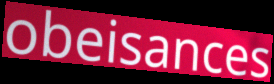
obeisances